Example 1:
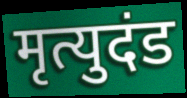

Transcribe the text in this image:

मृत्युदंड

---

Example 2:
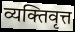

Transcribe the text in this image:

व्यक्तिवृत्त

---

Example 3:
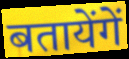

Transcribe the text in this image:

बतायेंगें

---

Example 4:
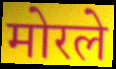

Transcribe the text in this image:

मोरले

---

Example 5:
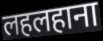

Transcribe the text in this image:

लहलहाना